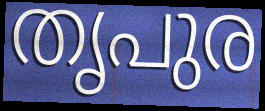
തൃപുര